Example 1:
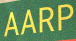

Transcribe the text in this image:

AARP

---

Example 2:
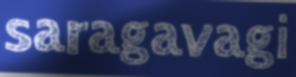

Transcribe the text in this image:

saragavagi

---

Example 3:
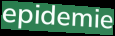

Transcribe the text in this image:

epidemie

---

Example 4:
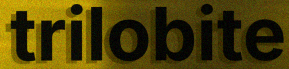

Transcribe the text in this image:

trilobite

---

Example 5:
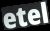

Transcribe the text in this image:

etel